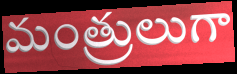
మంత్రులుగా